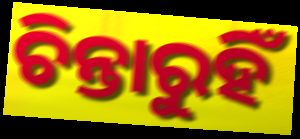
ଚିନ୍ତାରୁହିଁ